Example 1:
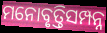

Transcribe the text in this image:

ମନୋବୃତ୍ତିସମ୍ପନ୍ନ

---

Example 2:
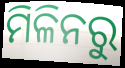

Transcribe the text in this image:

ମିଳିନରୁ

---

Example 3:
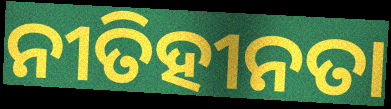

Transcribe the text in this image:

ନୀତିହୀନତା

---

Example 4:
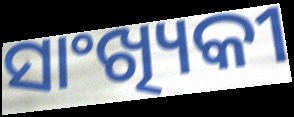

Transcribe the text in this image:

ସାଂଖ୍ୟିକୀ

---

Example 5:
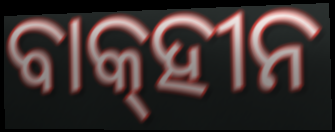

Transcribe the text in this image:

ବାକ୍‌ହୀନ